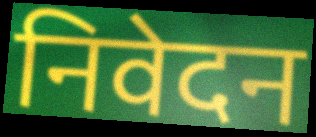
निवेदन